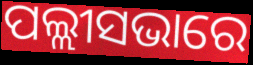
ପଲ୍ଲୀସଭାରେ